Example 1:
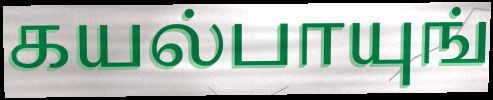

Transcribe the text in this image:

கயல்பாயுங்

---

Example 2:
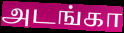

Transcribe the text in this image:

அடங்கா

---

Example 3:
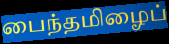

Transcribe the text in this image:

பைந்தமிழைப்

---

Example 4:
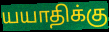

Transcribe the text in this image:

யயாதிக்கு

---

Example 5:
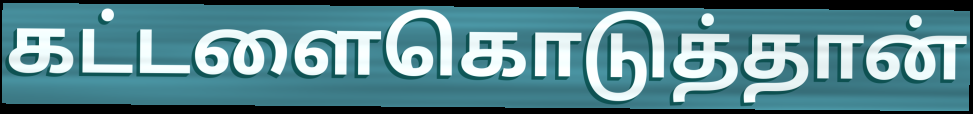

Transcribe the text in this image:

கட்டளைகொடுத்தான்